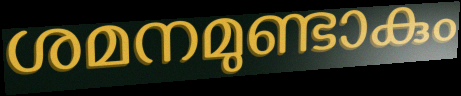
ശമനമുണ്ടാകും